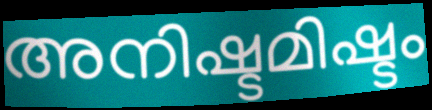
അനിഷ്ടമിഷ്ടം